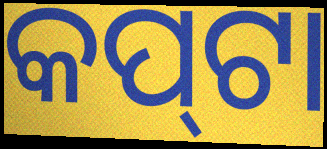
କପ୍‍ଟା